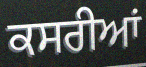
ਕਸਰੀਆਂ